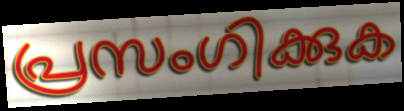
പ്രസംഗിക്കുക